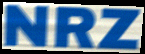
NRZ